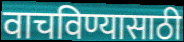
वाचविण्यासाठी